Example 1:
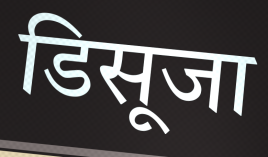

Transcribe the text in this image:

डिसूजा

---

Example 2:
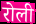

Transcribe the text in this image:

रोली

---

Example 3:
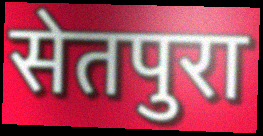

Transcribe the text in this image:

सेतपुरा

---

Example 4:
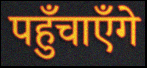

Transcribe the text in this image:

पहुँचाएँगे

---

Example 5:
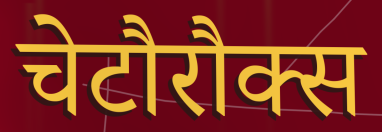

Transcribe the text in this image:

चेटौरौक्स